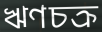
ঋণচক্র